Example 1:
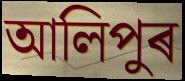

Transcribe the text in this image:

আলিপুৰ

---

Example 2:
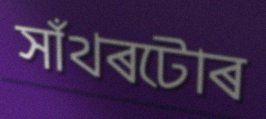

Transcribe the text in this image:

সাঁথৰটোৰ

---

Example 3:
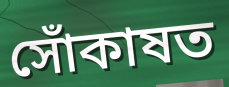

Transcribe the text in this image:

সোঁকাষত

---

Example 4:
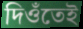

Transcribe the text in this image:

দিওঁতেই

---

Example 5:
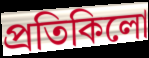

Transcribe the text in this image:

প্ৰতিকিলো